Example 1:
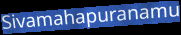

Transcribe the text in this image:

Sivamahapuranamu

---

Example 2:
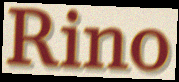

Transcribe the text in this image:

Rino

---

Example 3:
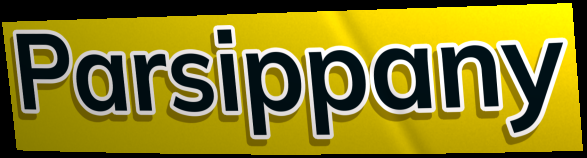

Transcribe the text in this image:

Parsippany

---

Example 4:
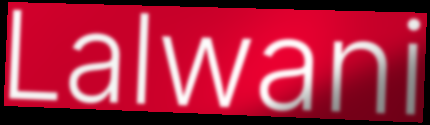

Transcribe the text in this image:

Lalwani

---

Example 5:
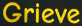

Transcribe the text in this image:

Grieve